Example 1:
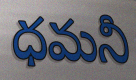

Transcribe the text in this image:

ధమనీ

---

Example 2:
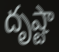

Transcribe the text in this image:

దృష్టా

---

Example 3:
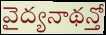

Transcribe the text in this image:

వైద్యనాథన్తో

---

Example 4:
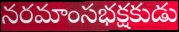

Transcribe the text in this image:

నరమాంసభక్షకుడు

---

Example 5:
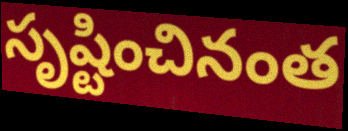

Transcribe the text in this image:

సృష్టించినంత